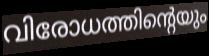
വിരോധത്തിന്റെയും